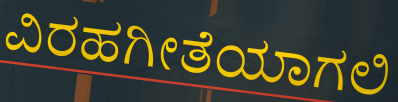
ವಿರಹಗೀತೆಯಾಗಲಿ